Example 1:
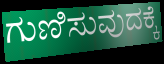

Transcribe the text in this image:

ಗುಣಿಸುವುದಕ್ಕೆ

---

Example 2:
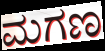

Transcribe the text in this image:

ಮಗಣ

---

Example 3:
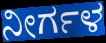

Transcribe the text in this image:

ನೀರ್ಗಳ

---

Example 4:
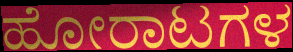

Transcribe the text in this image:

ಹೋರಾಟಗಳ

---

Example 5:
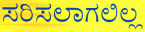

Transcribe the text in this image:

ಸರಿಸಲಾಗಲಿಲ್ಲ